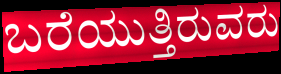
ಬರೆಯುತ್ತಿರುವರು